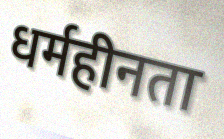
धर्महीनता